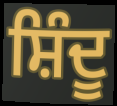
ਸ਼ਿੰਦੂ